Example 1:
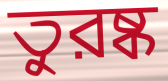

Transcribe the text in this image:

তুরষ্ক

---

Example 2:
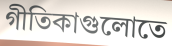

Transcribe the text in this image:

গীতিকাগুলোতে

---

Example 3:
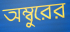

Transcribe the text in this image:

অম্বুরের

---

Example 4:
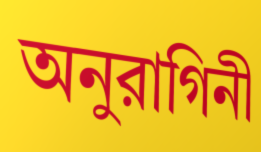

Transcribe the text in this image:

অনুরাগিনী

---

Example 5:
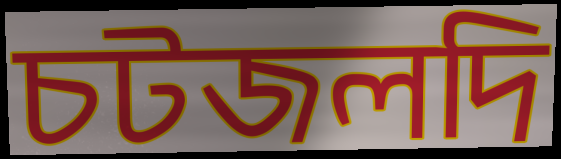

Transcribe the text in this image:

চটজলদি